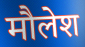
मौलेश